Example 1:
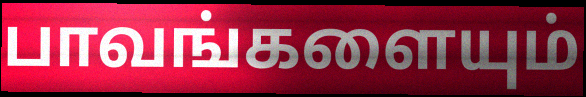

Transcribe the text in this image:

பாவங்களையும்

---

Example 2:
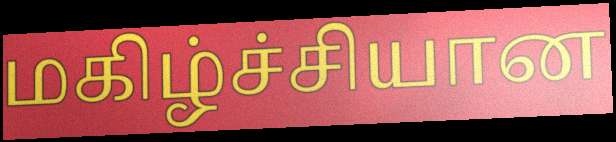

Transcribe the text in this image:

மகிழ்ச்சியான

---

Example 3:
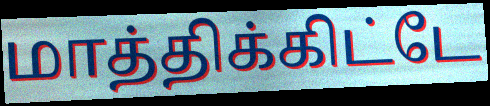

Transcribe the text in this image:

மாத்திக்கிட்டே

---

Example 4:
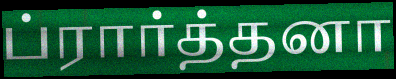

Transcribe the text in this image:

ப்ரார்த்தனா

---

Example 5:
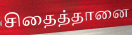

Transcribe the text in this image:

சிதைத்தானை